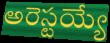
అరెస్టయ్యే